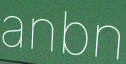
anbn